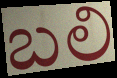
బలి